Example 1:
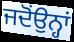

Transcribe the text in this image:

ਜਦੋਂਉਨ੍ਹਾਂ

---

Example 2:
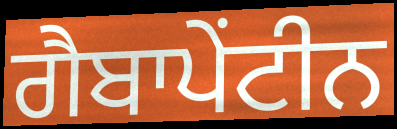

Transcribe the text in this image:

ਗੈਬਾਪੇਂਟੀਨ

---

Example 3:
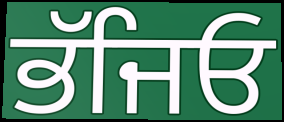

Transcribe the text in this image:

ਭੱਜਿਓ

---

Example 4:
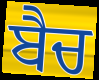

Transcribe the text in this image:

ਬੈਚ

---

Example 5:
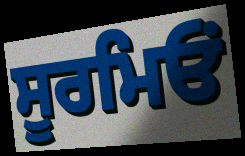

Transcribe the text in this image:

ਸੂਰਮਿਓਂ